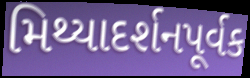
મિથ્યાદર્શનપૂર્વક